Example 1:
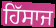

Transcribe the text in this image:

ਹਿੱਸਾਜ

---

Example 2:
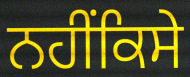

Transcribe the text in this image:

ਨਹੀਂਕਿਸੇ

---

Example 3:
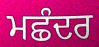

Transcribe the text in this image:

ਮਛੰਦਰ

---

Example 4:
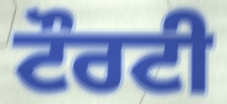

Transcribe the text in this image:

ਟੌਰਟੀ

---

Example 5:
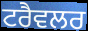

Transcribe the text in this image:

ਟਰੈਵਲਰ